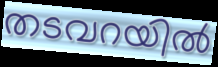
തടവറയിൽ